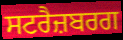
ਸਟਰੈਜ਼ਬਰਗ